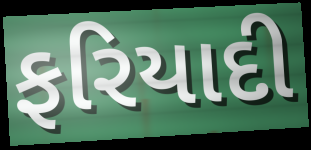
ફરિયાદી